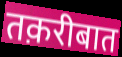
तक़रीबात